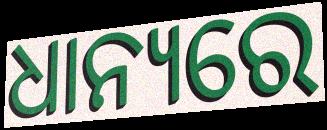
ଧାନ୍ୟରେ